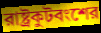
রাষ্ট্রকুটবংশের